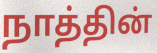
நாத்தின்